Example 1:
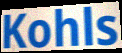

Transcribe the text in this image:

Kohls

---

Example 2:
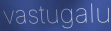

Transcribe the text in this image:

vastugalu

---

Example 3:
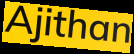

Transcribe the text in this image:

Ajithan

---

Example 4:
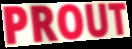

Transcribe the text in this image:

PROUT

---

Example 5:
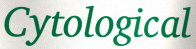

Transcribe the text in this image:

Cytological